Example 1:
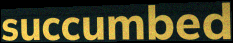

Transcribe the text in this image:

succumbed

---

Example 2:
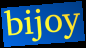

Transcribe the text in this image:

bijoy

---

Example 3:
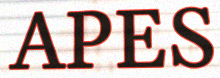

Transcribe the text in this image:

APES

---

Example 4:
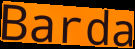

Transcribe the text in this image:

Barda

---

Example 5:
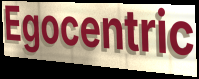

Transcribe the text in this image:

Egocentric